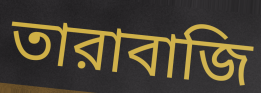
তারাবাজি